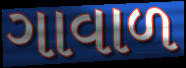
ગાવાળ